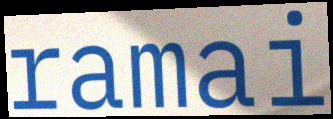
ramai